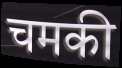
चमकी